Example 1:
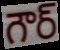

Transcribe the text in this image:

గౌర్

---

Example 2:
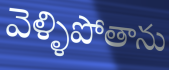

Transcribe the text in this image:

వెళ్ళిపోతాను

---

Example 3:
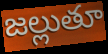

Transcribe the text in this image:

జల్లుతూ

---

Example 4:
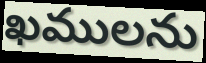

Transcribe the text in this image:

ఖములను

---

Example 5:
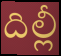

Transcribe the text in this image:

దిల్లీ